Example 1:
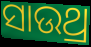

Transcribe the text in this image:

ସାଉଥ୍ର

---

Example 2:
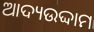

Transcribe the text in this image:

ଆଦ୍ୟଉଦ୍ଦାମ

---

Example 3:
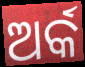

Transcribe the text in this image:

ଅର୍କ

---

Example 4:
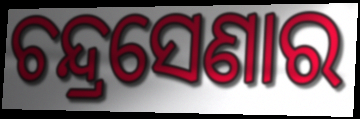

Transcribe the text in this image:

ଚନ୍ଦ୍ରସେଣାର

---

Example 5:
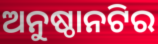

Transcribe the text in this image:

ଅନୁଷ୍ଠାନଟିର